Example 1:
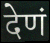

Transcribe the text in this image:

देणं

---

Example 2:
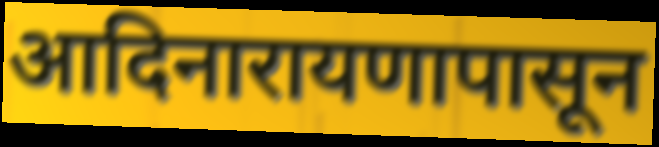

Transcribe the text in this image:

आदिनारायणापासून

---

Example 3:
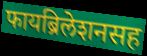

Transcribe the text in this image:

फायब्रिलेशनसह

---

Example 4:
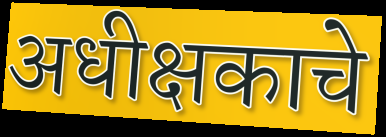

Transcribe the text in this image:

अधीक्षकाचे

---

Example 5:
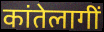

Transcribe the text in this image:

कांतेलागीं